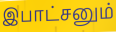
இபாட்சனும்